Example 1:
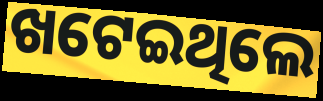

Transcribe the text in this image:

ଖଟେଇଥିଲେ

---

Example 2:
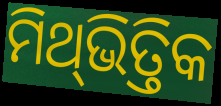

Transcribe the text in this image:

ମିଥ୍‍ଭିତ୍ତିକ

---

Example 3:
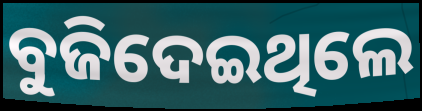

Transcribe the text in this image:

ବୁଜିଦେଇଥିଲେ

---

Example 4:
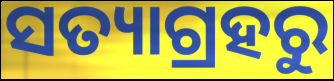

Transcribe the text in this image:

ସତ୍ୟାଗ୍ରହରୁ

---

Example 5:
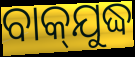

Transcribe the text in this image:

ବାକ୍‌ଯୁଦ୍ଧ